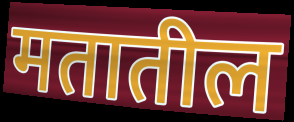
मतातील